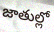
జాతుల్లో